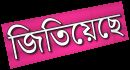
জিতিয়েছে